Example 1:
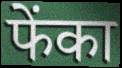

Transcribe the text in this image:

फेंका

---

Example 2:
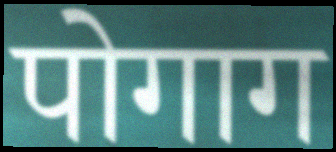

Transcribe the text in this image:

पोगाग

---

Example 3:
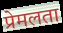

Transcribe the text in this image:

प्रेमलता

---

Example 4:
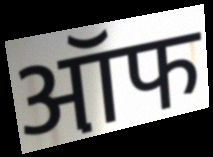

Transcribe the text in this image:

ऑ़फ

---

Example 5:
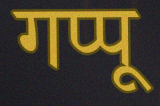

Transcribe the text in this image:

गप्पू